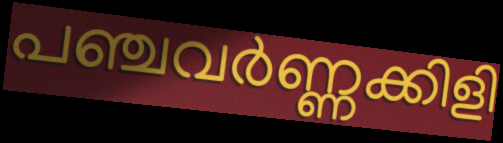
പഞ്ചവർണ്ണക്കിളി